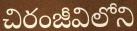
చిరంజీవిలోని